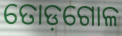
ତୋଡ଼ଗୋଳ